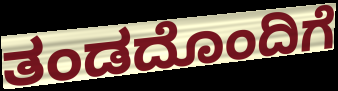
ತಂಡದೊಂದಿಗೆ